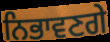
ਨਿਭਾਵਣਗੇ